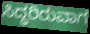
ಸಿದ್ಧರಿರುವಾಗ